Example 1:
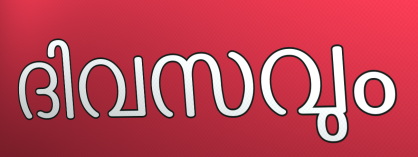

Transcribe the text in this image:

ദിവസവും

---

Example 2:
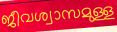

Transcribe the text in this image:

ജീവശ്വാസമുള്ള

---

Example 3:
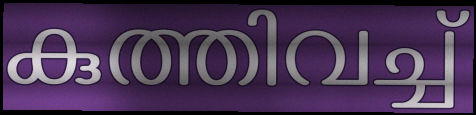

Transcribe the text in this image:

കുത്തിവച്ച്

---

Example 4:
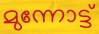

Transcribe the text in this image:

മുന്നോട്ട്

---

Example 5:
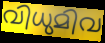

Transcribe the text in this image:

വിധുമിവ